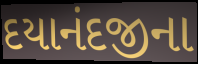
દયાનંદજીના